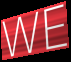
WE